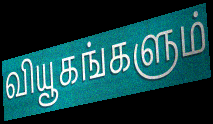
வியூகங்களும்